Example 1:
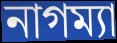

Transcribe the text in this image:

নাগম্যা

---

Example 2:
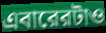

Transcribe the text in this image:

এবারেরটাও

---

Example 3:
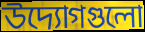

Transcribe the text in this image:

উদ্যোগগুলো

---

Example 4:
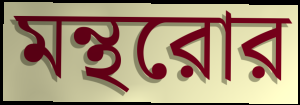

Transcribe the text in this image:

মন্থরোর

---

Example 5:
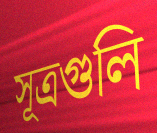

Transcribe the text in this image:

সূত্রগুলি